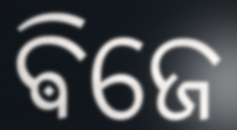
ଵିଜେ